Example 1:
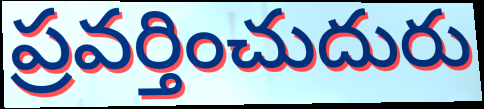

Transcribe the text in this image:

ప్రవర్తించుదురు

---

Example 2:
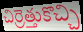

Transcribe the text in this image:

చిర్రెత్తుకొచ్చి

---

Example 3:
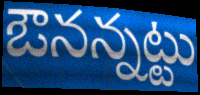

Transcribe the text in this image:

ఔనన్నట్టు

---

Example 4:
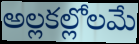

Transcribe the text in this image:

అల్లకల్లోలమే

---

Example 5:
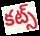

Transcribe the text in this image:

కట్స్